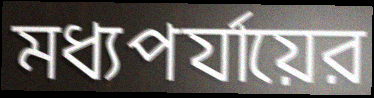
মধ্যপর্যায়ের